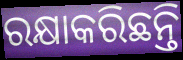
ରକ୍ଷାକରିଛନ୍ତି